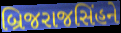
બ્રિજરાજસિંહને